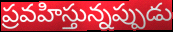
ప్రవహిస్తున్నప్పుడు